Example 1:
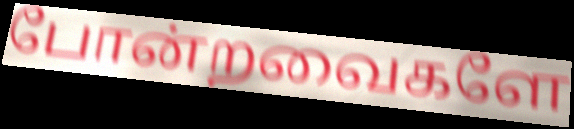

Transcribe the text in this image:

போன்றவைகளே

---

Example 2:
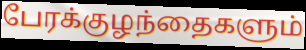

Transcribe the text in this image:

பேரக்குழந்தைகளும்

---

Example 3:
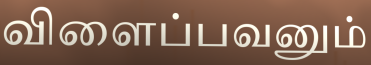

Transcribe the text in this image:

விளைப்பவனும்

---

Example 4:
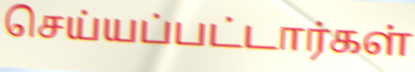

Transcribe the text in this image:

செய்யப்பட்டார்கள்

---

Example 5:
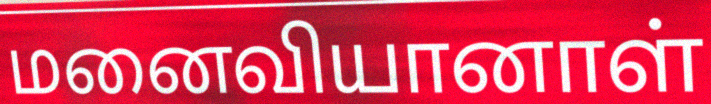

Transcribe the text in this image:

மனைவியானாள்